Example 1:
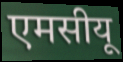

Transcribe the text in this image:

एमसीयू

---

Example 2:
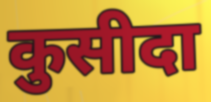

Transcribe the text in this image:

कुसीदा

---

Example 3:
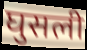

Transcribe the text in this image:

घुसली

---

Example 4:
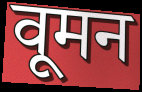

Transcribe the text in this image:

वूमन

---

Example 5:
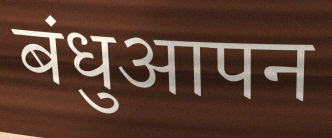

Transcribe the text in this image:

बंधुआपन